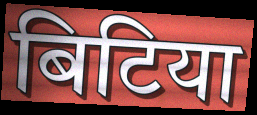
बिटिया